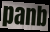
panb